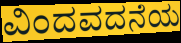
ವಿಂದವದನೆಯ